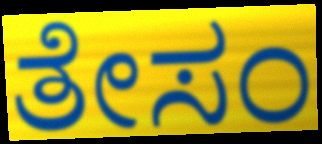
ತೇಸಂ